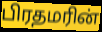
பிரதமரின்